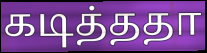
கடித்ததா